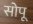
सोपू